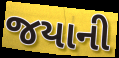
જયાની